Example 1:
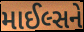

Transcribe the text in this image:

માઈલ્સને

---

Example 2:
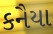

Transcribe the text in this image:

કનૈયા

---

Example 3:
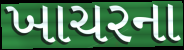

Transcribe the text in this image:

ખાચરના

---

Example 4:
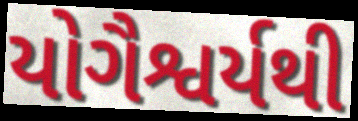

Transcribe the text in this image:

યોગૈશ્વર્યથી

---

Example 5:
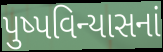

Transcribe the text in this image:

પુષ્પવિન્યાસનાં